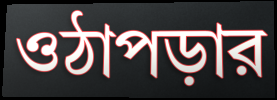
ওঠাপড়ার